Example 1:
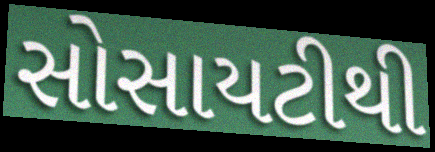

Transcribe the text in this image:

સોસાયટીથી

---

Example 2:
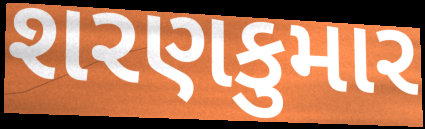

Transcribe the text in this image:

શરણકુમાર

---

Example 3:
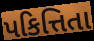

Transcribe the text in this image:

પકિત્તિતા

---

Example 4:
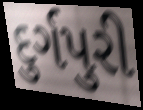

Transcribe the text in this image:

દુર્ગપુરી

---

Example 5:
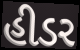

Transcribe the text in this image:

હીડર